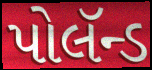
પોલૅન્ડ